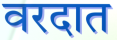
वरदात